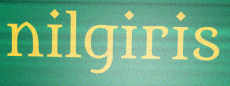
nilgiris